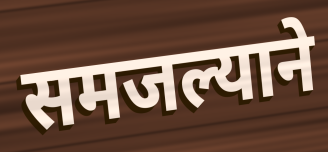
समजल्याने